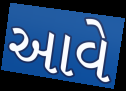
આવે